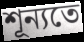
শূন্যতে